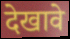
देखावे